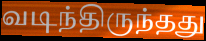
வடிந்திருந்தது